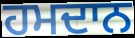
ਹਮਦਾਨ